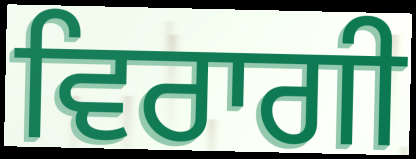
ਵਿਰਾਗੀ